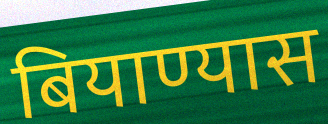
बियाण्यास